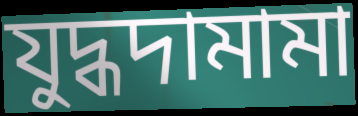
যুদ্ধদামামা